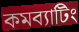
কমব্যাটিং